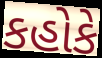
કહોકે